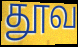
தூவ